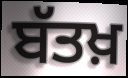
ਬੱਤਖ਼